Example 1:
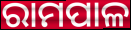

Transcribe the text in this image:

ରାମପାଳ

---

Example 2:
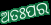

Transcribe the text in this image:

ଅତଃପର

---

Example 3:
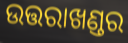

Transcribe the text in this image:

ଉତ୍ତରାଖଣ୍ଡର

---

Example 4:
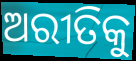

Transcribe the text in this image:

ଅରୀତିକୁ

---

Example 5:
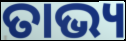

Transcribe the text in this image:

ତାଭ୍ୟ